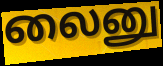
லைனு